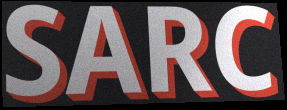
SARC